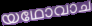
യഥോവാച